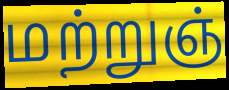
மற்றுஞ்